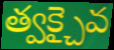
త్వక్చైవ